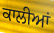
ਕਾਲੀਆਂ